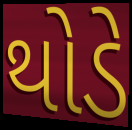
થોડે